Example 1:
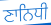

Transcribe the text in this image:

ਣਾਨਿਧੀ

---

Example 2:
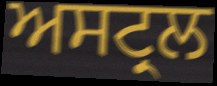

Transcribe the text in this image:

ਅਸਟ੍ਰਲ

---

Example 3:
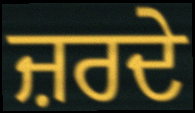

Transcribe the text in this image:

ਜ਼ਰਦੇ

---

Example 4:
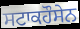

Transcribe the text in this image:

ਸਟਾਕਹੌਸੇਨ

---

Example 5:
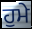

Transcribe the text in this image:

ਹੁਮੇ